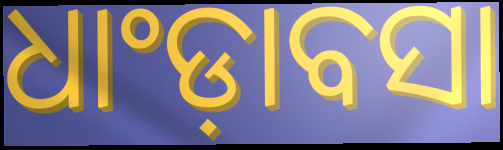
ଧାଂଡ଼ାବସା